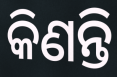
କିଣନ୍ତି